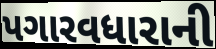
પગારવધારાની